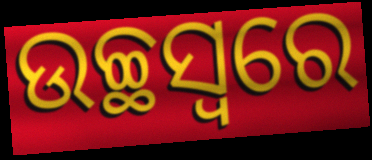
ଉଚ୍ଛସ୍ୱରେ